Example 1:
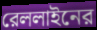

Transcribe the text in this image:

রেললাইনের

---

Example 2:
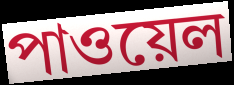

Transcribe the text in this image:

পাওয়েল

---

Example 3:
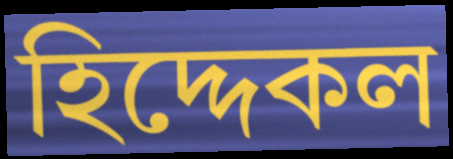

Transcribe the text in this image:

হিদ্দেকল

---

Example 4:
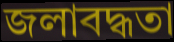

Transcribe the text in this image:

জলাবদ্ধতা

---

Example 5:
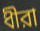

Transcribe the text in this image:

ধীরা